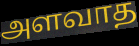
அளவாத